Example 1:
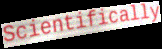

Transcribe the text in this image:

Scientifically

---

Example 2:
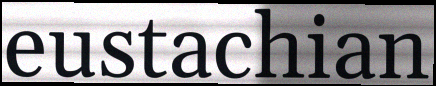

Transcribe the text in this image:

eustachian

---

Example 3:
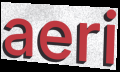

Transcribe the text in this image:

aeri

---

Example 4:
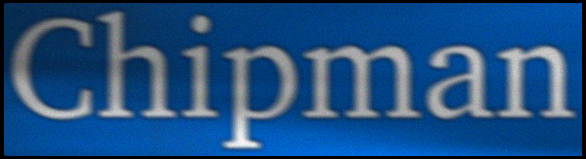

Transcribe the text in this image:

Chipman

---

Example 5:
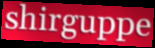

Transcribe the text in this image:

shirguppe